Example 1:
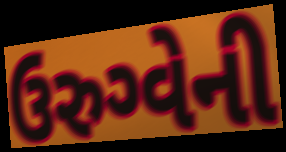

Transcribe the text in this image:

ઉરુગ્વેની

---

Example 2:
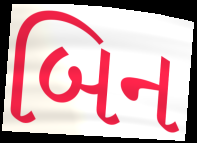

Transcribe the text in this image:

બિન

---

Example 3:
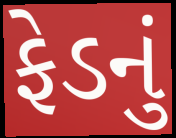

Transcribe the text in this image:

ફેડનું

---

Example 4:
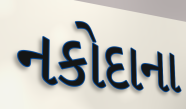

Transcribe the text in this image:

નકોદાના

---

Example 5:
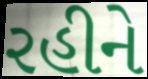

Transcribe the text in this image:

રહીને